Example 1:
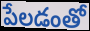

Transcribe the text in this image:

పేలడంతో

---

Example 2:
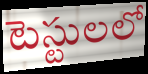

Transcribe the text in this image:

టెస్టులలో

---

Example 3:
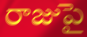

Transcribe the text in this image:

రాజుపై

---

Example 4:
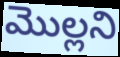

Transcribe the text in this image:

మొల్లని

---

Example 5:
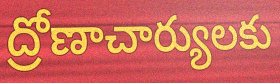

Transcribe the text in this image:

ద్రోణాచార్యులకు